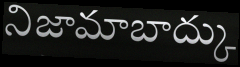
నిజామాబాద్కు